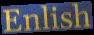
Enlish